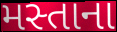
મસ્તાના